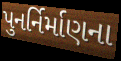
પુનર્નિર્માણના